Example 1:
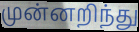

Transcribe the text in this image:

முன்னறிந்து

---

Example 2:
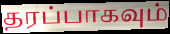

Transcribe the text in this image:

தரப்பாகவும்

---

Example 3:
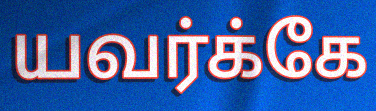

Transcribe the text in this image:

யவர்க்கே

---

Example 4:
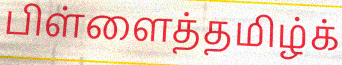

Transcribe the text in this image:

பிள்ளைத்தமிழ்க்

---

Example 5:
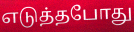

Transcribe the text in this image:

எடுத்தபோது